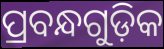
ପ୍ରବନ୍ଧଗୁଡ଼ିକ